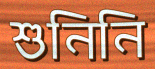
শুনিনি